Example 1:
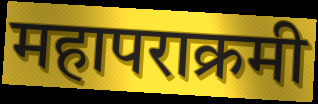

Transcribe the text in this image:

महापराक्रमी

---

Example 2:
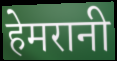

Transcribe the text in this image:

हेमरानी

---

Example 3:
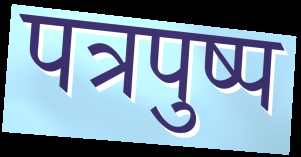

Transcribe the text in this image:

पत्रपुष्प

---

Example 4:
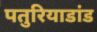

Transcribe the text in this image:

पतुरियाडांड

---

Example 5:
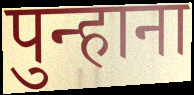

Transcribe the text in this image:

पुन्हाना